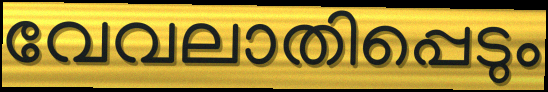
വേവലാതിപ്പെടും